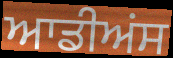
ਆਡੀਅਂਸ